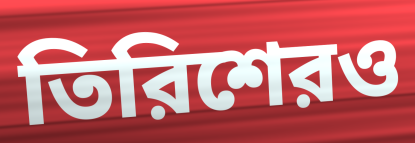
তিরিশেরও